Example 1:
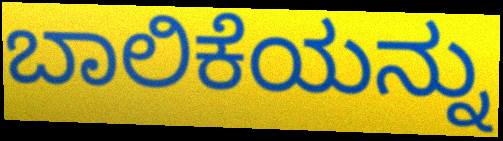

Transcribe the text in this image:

ಬಾಲಿಕೆಯನ್ನು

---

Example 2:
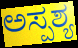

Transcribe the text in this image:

ಅಸ್ಪಶ್ಯ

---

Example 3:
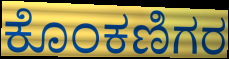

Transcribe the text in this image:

ಕೊಂಕಣಿಗರ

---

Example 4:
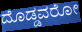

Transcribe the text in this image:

ದೊಡ್ಡವರೋ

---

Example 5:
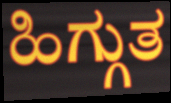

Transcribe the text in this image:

ಹಿಗ್ಗುತ